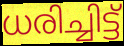
ധരിച്ചിട്ട്